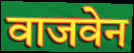
वाजवेन